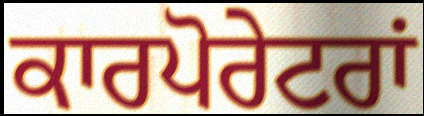
ਕਾਰਪੋਰੇਟਰਾਂ